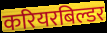
करियरबिल्डर